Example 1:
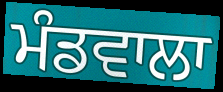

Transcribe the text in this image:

ਮੰਡਵਾਲਾ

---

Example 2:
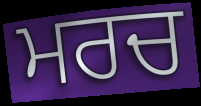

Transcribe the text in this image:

ਮਰਚ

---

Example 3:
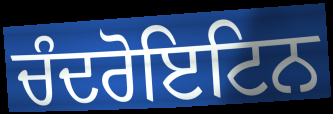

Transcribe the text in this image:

ਚੰਦਰੋਇਟਿਨ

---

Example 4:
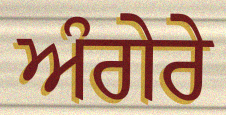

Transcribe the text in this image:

ਅੰਗੇਰੇ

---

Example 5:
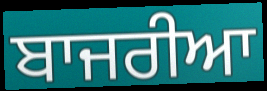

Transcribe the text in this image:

ਬਾਜਰੀਆ